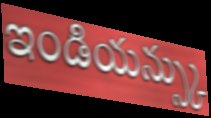
ఇండియన్స్కు